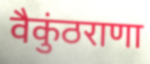
वैकुंठराणा